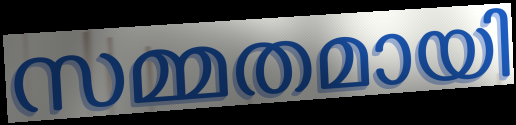
സമ്മതമായി